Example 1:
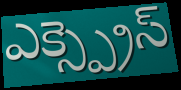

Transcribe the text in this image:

ఎక్స్ప్రెస్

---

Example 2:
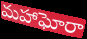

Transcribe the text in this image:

మహాఘోరా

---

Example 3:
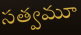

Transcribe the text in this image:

సత్వమూ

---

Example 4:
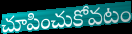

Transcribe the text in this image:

చూపించుకోవటం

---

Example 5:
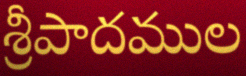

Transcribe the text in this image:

శ్రీపాదముల